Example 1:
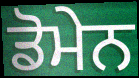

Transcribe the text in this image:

ਡੋਮੇਨ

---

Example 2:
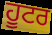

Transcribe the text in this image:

ਹੂਟਰ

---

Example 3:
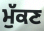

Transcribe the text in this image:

ਮੁੱਕਣ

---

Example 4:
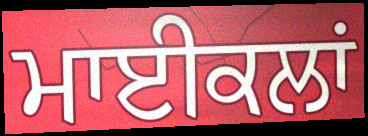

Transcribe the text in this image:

ਮਾਈਕਲਾਂ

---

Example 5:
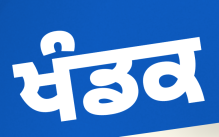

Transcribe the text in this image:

ਖੰਡਕ